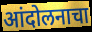
आंदोलनाचा